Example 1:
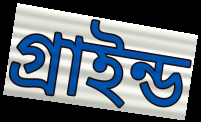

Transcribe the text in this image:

গ্রাইন্ড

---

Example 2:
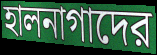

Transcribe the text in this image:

হালনাগাদের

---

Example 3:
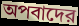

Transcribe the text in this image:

অপবাদের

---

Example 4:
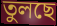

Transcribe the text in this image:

তুলছে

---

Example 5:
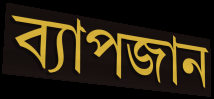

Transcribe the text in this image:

ব্যাপজান